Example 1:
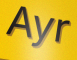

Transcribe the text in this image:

Ayr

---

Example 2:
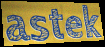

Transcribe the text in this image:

astek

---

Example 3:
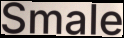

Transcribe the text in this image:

Smale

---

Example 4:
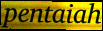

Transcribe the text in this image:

pentaiah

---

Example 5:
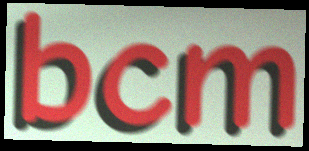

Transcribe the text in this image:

bcm